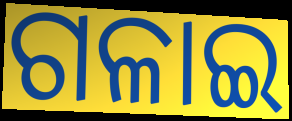
ଗଳାଇ